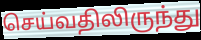
செய்வதிலிருந்து